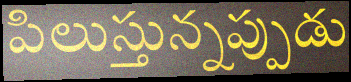
పిలుస్తున్నప్పుడు